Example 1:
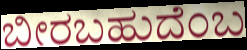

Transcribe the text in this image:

ಬೀರಬಹುದೆಂಬ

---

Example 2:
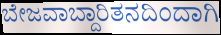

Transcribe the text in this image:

ಬೇಜವಾಬ್ದಾರಿತನದಿಂದಾಗಿ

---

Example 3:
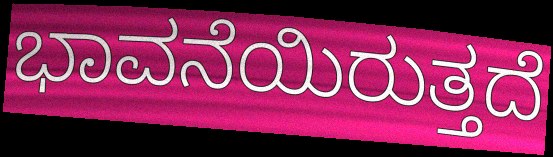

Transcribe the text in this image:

ಭಾವನೆಯಿರುತ್ತದೆ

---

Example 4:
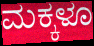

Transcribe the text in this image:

ಮಕ್ಕಳೂ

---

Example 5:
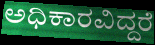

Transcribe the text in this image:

ಅಧಿಕಾರವಿದ್ದರೆ